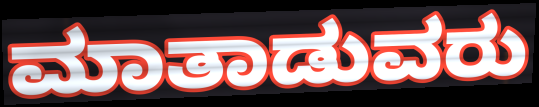
ಮಾತಾಡುವರು